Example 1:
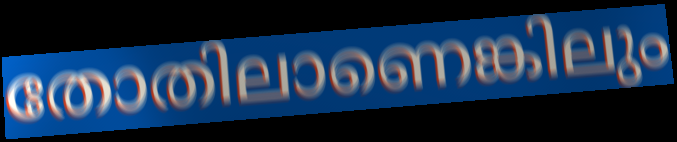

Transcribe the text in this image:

തോതിലാണെങ്കിലും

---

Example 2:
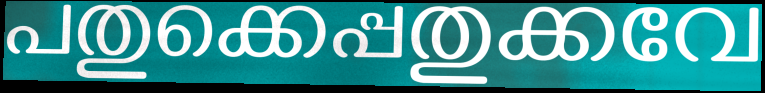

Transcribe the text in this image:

പതുക്കെപ്പതുക്കവേ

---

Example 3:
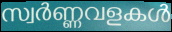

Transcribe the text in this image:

സ്വർണ്ണവളകൾ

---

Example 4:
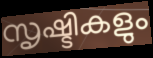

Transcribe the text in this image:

സൃഷ്ടികളും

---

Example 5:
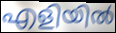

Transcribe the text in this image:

എളിയിൽ